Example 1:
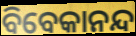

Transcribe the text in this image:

ବିବେକାନନ୍ଦ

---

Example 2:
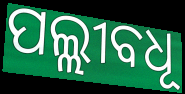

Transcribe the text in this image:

ପଲ୍ଲୀବଧୂ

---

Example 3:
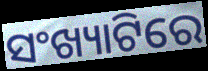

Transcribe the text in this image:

ସଂଖ୍ୟାଟିରେ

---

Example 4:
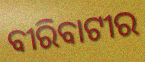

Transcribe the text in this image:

ବୀରିବାଟୀର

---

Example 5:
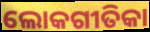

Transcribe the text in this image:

ଲୋକଗୀତିକା